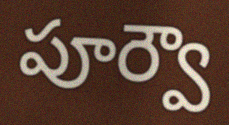
పూర్వౌ